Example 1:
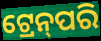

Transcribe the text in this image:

ଟ୍ରେନ୍‌ପରି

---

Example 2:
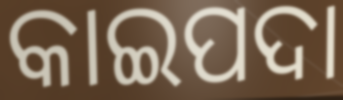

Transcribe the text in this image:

କାଇପଦା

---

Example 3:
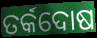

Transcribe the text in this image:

ତର୍କଦୋଷ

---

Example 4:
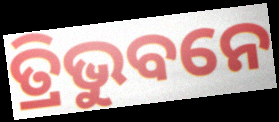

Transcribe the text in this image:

ତ୍ରିଭୁବନେ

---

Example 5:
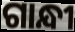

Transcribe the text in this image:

ଗାନ୍ଧୀ